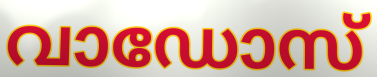
വാഡോസ്